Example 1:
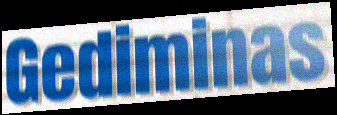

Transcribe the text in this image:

Gediminas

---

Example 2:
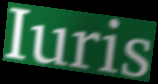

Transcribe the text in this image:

Iuris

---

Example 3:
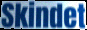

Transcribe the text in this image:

Skindet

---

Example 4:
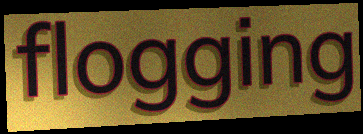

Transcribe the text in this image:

flogging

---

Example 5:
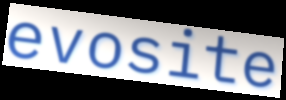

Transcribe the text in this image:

evosite